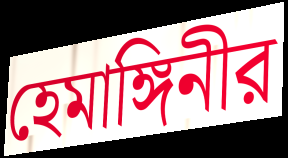
হেমাঙ্গিনীর